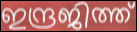
ഇന്ദ്രജിത്ത്